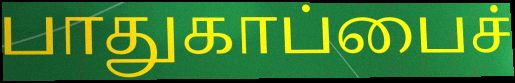
பாதுகாப்பைச்